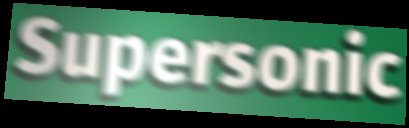
Supersonic